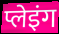
प्लेइंग